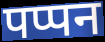
पप्पन